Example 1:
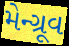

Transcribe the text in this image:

મેન્ગ્રૂવ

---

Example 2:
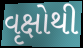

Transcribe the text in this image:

વૃક્ષોથી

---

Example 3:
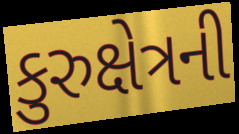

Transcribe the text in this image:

કુરુક્ષેત્રની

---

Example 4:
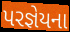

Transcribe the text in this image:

પરજ્ઞેયના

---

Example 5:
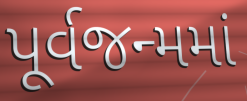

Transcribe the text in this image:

પૂર્વજન્મમાં